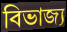
বিভাজ্য